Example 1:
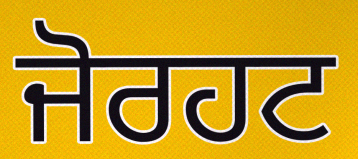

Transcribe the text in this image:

ਜੋਰਹਟ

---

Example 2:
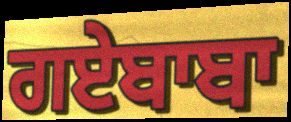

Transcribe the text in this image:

ਗਏਬਾਬਾ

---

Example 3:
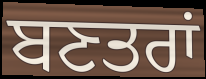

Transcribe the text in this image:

ਬਣਤਰਾਂ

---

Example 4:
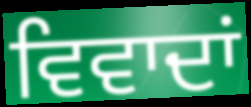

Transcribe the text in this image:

ਵਿਵਾਦਾਂ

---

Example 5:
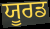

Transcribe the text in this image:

ਯੂਰਡ